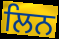
ਲਿਨ